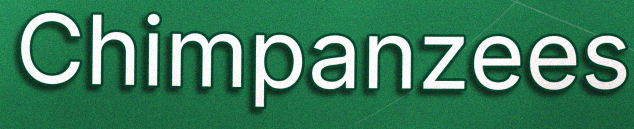
Chimpanzees